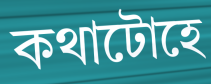
কথাটোহে